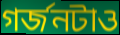
গর্জনটাও